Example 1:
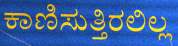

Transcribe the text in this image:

ಕಾಣಿಸುತ್ತಿರಲಿಲ್ಲ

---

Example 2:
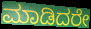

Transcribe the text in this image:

ಮಾಡಿದರೇ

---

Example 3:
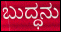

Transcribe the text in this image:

ಬುದ್ಧನು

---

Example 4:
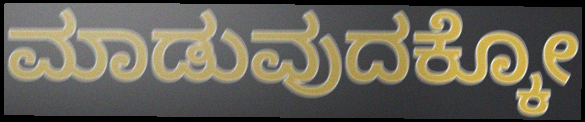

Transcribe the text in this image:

ಮಾಡುವುದಕ್ಕೋ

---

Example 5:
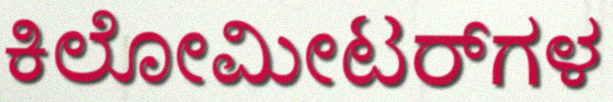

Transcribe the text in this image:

ಕಿಲೋಮೀಟರ್‌ಗಳ